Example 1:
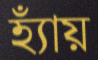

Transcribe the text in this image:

হ্যাঁয়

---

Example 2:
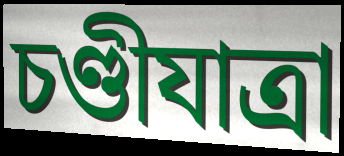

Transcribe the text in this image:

চণ্ডীযাত্রা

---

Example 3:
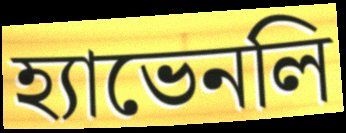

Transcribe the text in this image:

হ্যাভেনলি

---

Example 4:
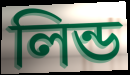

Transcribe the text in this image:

লিন্ড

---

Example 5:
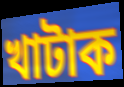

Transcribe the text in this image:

খাটাক